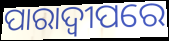
ପାରାଦ୍ୱୀପରେ